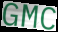
GMC